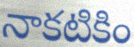
నాకటికిం